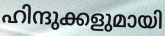
ഹിന്ദുക്കളുമായി